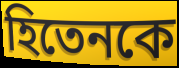
হিতেনকে